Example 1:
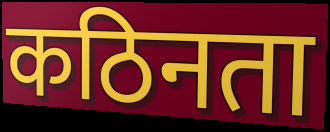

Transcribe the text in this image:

कठिनता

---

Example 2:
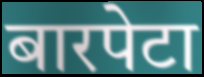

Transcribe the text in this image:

बारपेटा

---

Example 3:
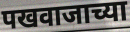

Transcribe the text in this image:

पखवाजाच्या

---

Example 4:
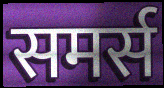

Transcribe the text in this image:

समर्स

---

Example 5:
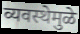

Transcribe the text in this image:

व्यवस्थेमुळे